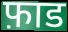
फ़ाड